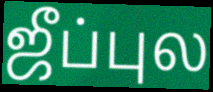
ஜீப்புல